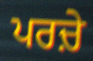
ਪਰਚ਼ੇ